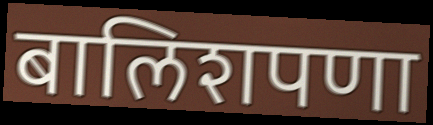
बालिशपणा